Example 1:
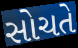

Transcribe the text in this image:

સોચતે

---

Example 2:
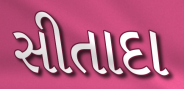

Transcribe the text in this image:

સીતાદા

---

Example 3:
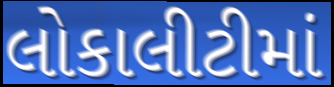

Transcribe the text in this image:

લોકાલીટીમાં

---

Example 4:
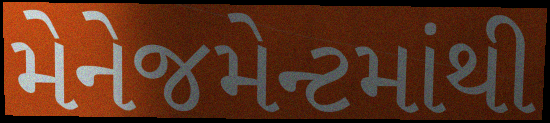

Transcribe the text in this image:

મેનેજમેન્ટમાંથી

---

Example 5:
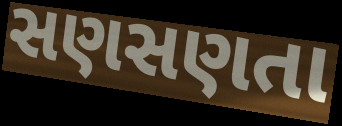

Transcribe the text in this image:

સણસણતા